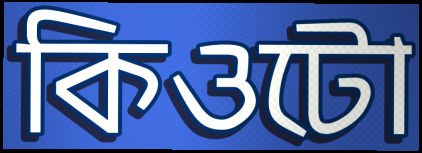
কিওটো